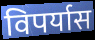
विपर्यास